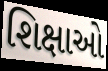
શિક્ષાઓ